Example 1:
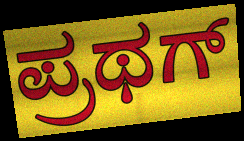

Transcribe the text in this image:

ಪ್ರಥಗ್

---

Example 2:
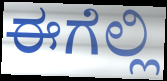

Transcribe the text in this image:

ಈಗೆಲ್ಲಿ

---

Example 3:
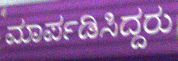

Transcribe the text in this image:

ಮಾರ್ಪಡಿಸಿದ್ದರು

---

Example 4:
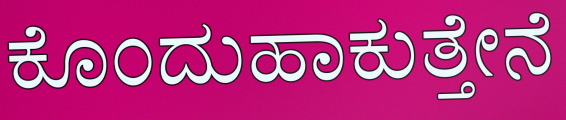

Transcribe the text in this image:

ಕೊಂದುಹಾಕುತ್ತೇನೆ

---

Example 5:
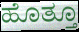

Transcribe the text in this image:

ಹೊತ್ತೂ